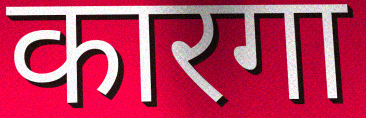
कारगा